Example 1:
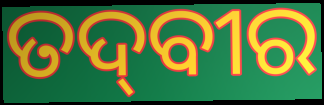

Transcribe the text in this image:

ତଦ୍‌ବୀର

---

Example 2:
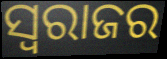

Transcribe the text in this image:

ସ୍ବରାଜର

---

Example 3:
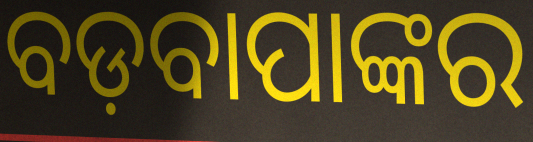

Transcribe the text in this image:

ବଡ଼ବାପାଙ୍କର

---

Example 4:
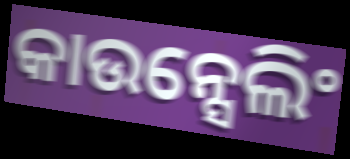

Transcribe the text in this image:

କାଉନ୍ସେଲିଂ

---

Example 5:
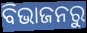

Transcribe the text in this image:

ବିଭାଜନରୁ